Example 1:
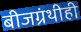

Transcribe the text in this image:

बीजग्रंथीही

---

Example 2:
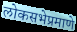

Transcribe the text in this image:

लोकसभेप्रमाणे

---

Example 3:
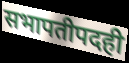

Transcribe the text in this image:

सभापतीपदही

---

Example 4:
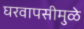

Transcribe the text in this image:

घरवापसीमुळे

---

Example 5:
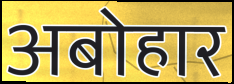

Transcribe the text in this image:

अबोहार